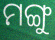
ମଙ୍ଗୁ